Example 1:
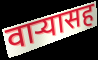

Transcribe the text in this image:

वार्‍यासह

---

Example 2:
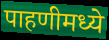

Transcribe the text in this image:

पाहणीमध्ये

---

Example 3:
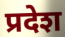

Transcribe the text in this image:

प्रदेश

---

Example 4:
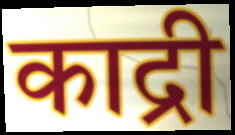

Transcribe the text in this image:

काद्री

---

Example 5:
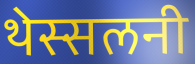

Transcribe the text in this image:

थेस्सलनी